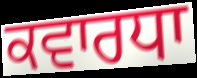
ਕਵਾਰਧਾ